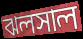
ঝলসাল